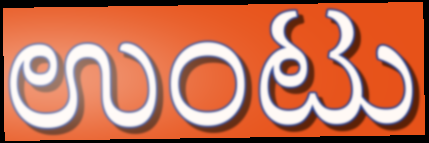
ಉಂಟು